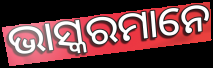
ଭାସ୍କରମାନେ